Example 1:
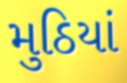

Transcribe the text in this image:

મુઠિયાં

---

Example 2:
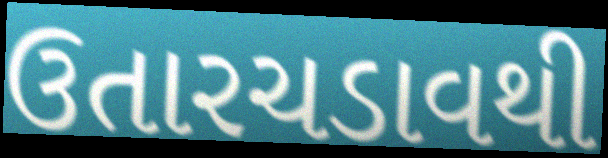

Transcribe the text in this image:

ઉતારચડાવથી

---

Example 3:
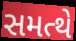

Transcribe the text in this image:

સમત્થે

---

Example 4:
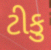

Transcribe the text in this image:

ટીકુ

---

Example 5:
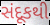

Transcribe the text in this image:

સંદૂકથી